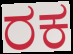
ರಕ